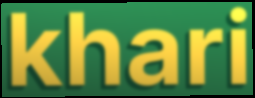
khari